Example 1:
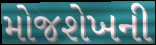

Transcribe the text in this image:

મોજશેખની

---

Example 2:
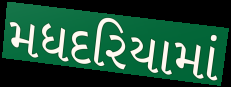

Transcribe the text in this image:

મધદરિયામાં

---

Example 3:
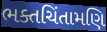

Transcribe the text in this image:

ભક્તચિંતામણિ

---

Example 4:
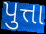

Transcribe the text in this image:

પુત્તા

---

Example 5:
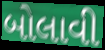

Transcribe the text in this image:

બોલાવી